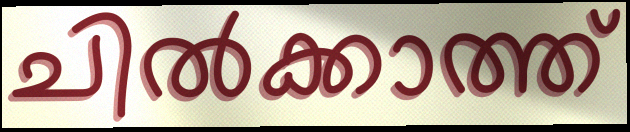
ചിൽക്കാത്ത്